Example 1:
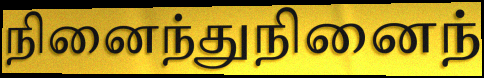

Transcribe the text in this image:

நினைந்துநினைந்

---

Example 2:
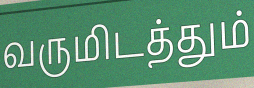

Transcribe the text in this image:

வருமிடத்தும்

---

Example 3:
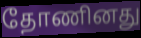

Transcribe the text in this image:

தோணினது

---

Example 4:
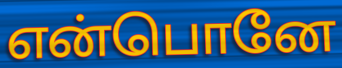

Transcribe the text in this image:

என்பொனே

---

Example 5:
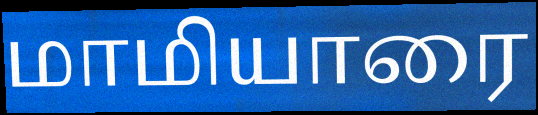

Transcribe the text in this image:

மாமியாரை